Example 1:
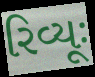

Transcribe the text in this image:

રિવ્યૂઃ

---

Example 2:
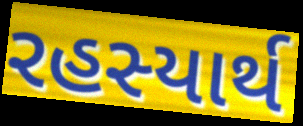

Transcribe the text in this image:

રહસ્યાર્થ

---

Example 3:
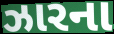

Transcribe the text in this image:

ઝારના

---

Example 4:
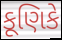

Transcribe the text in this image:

કૂણિકે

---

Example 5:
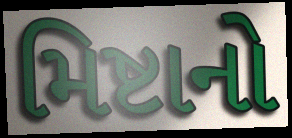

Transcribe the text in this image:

મિષ્ટાનો